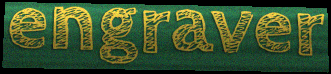
engraver